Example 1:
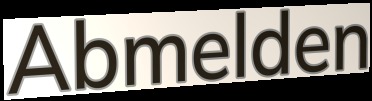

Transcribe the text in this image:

Abmelden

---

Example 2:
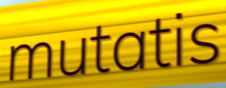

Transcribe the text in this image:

mutatis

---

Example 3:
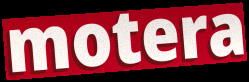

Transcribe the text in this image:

motera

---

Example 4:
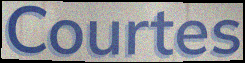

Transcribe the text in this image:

Courtes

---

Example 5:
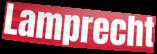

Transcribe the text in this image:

Lamprecht